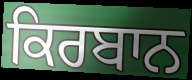
ਕਿਰਬਾਨ